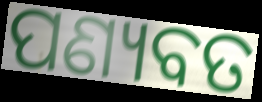
ପଣ୍ୟବତ